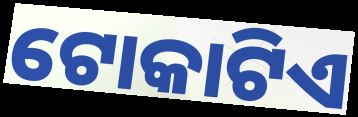
ଟୋକାଟିଏ